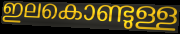
ഇലകൊണ്ടുള്ള